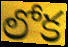
లోక